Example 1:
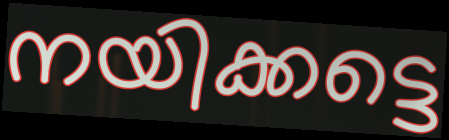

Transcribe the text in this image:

നയിക്കട്ടെ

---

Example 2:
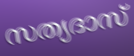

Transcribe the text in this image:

സത്യദാസ്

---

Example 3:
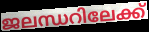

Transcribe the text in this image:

ജലന്ധറിലേക്ക്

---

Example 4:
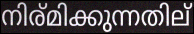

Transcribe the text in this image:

നിര്മിക്കുന്നതില്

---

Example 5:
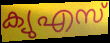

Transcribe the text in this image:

ക്യുഎസ്